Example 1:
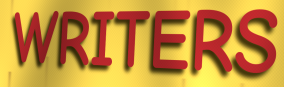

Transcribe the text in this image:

WRITERS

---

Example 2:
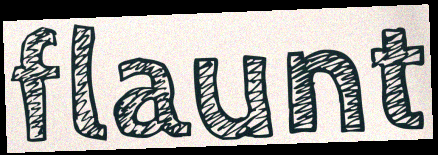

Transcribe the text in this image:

flaunt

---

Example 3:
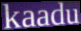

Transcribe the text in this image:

kaadu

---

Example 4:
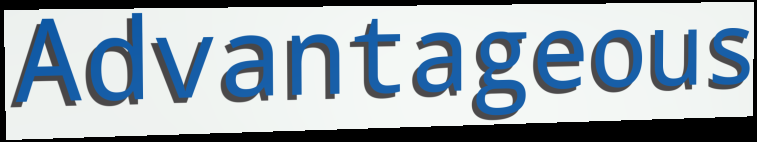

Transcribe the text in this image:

Advantageous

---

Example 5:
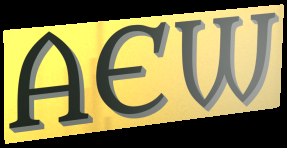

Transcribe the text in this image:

AEW